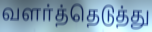
வளர்த்தெடுத்து